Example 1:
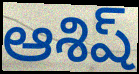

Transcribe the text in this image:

ఆశిష్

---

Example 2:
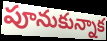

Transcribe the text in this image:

పూనుకున్నాక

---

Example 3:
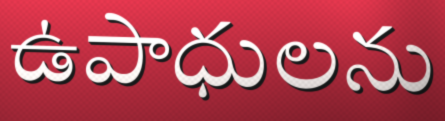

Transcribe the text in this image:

ఉపాధులను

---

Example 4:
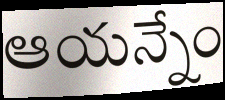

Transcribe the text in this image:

ఆయన్నేం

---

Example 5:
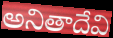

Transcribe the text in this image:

అనితాదేవి